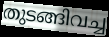
തുടങ്ങിവച്ച